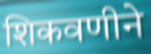
शिकवणीने